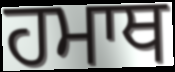
ਹਮਾਥ